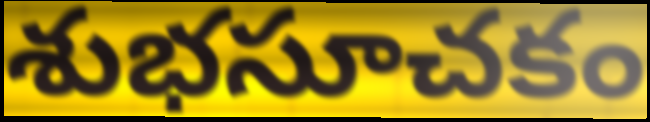
శుభసూచకం